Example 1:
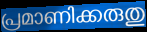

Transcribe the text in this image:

പ്രമാണിക്കരുതു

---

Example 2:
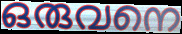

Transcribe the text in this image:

ഒരുവനെ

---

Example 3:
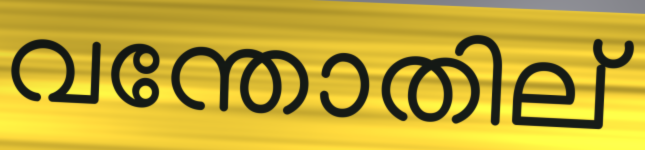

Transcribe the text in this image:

വന്തോതില്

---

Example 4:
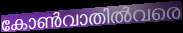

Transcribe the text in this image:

കോൺവാതിൽവരെ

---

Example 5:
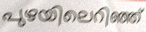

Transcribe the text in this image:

പുഴയിലെറിഞ്ഞ്